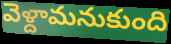
వెళ్దామనుకుంది